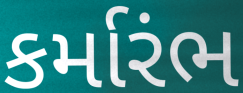
કર્મારંભ